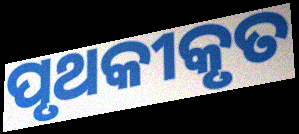
ପୃଥକୀକୃତ